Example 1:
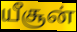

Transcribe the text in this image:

யீசூன்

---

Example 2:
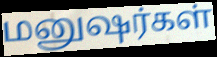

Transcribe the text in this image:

மனுஷர்கள்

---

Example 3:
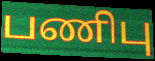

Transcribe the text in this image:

பணிபு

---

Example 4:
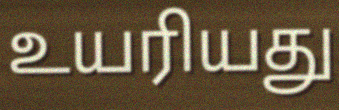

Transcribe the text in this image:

உயரியது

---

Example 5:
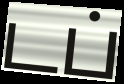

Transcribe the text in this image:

டப்